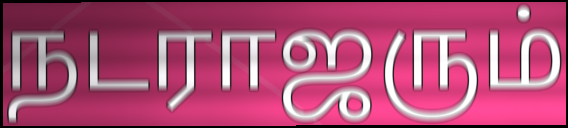
நடராஜரும்